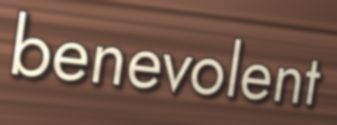
benevolent